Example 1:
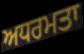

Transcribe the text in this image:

ਅਧਰਮਤਾ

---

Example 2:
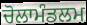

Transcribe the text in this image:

ਚੋਲਾਮੰਡਲਮ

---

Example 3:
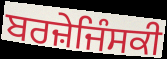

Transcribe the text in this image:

ਬਰਜ਼ੇਜਿੰਸਕੀ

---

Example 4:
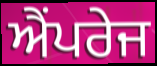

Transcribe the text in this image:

ਐਂਪਰੇਜ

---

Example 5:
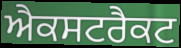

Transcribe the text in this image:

ਐਕਸਟਰੈਕਟ